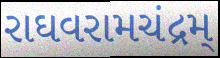
રાઘવરામચંદ્રમ્